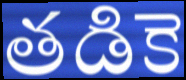
తడికె